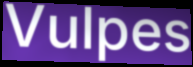
Vulpes